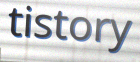
tistory